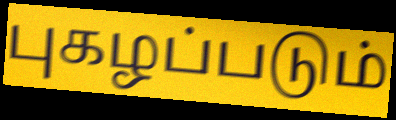
புகழப்படும்